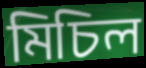
মিচিল